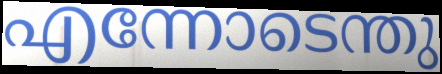
എന്നോടെന്തു